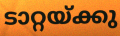
ടാറ്റയ്ക്കു